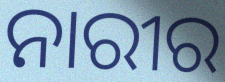
ନାରୀର